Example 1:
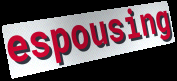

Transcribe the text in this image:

espousing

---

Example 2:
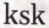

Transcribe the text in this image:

ksk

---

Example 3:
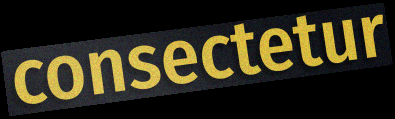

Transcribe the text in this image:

consectetur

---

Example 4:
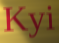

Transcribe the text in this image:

Kyi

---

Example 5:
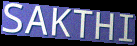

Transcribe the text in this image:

SAKTHI